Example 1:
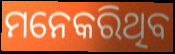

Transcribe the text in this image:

ମନେକରିଥିବ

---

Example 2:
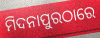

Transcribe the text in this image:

ମିଦନାପୁରଠାରେ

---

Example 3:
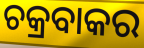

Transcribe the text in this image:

ଚକ୍ରବାକର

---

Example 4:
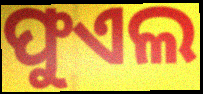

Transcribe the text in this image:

ଫୁଏଲ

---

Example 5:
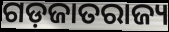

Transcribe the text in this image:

ଗଡ଼ଜାତରାଜ୍ୟ